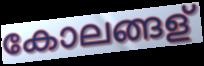
കോലങ്ങള്